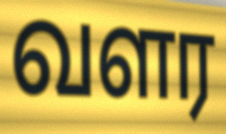
வளர